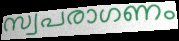
സ്വപരാഗണം